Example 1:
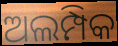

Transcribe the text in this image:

ଅଲମ୍ପିକ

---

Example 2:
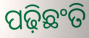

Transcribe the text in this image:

ପଢ଼ିଛଂତି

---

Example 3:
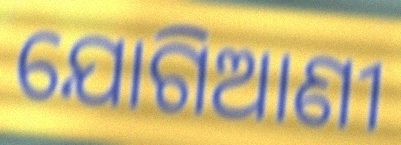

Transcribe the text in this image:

ଯୋଗିଆଣୀ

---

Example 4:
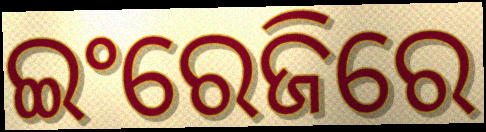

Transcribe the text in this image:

ଇଂରେଜିରେ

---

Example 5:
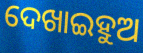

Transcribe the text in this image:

ଦେଖାଇହୁଅ